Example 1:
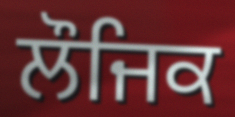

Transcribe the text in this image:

ਲੌਜਿਕ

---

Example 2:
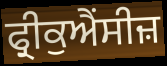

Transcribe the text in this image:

ਫ੍ਰੀਕੁਐਂਸੀਜ਼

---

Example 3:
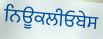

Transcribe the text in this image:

ਨਿਊਕਲੀਓਬੇਸ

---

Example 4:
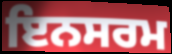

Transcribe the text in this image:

ਇਨਸਰਮ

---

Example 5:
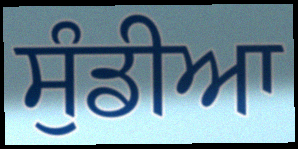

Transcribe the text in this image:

ਸੁੰਡੀਆ